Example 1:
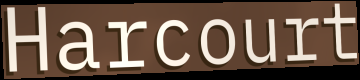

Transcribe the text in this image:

Harcourt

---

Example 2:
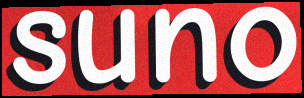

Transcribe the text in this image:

suno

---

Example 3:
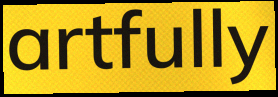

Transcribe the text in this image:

artfully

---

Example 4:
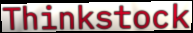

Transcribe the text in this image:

Thinkstock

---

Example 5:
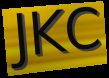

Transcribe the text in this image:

JKC